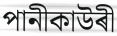
পানীকাউৰী